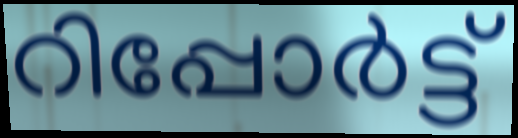
റിപ്പോർട്ട്